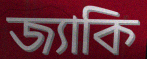
জ্যাকি